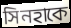
সিনহাকে